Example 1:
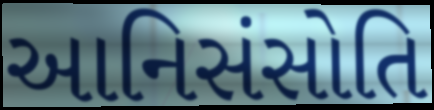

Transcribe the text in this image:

આનિસંસોતિ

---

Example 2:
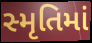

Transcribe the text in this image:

સ્મૃતિમાં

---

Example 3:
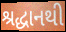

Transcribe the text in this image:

શ્રદ્ધાનથી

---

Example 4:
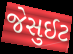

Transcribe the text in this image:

જેસુઈટ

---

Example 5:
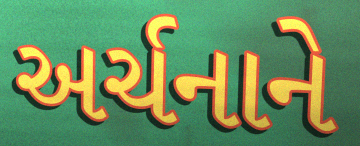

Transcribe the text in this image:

અર્ચનાને